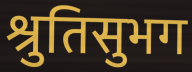
श्रुतिसुभग